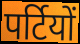
पर्टियों